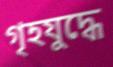
গৃহযুদ্ধে